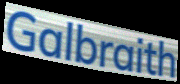
Galbraith